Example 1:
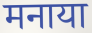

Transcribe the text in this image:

मनाया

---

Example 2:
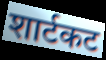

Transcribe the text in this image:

शार्टकट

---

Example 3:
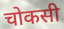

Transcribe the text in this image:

चोकसी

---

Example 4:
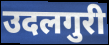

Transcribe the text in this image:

उदलगुरी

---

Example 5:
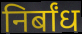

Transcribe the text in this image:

निर्बांध